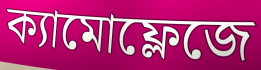
ক্যামোফ্লেজে